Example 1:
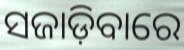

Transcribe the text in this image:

ସଜାଡ଼ିବାରେ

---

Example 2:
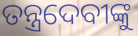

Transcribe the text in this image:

ତନ୍ତ୍ରଦେବୀଙ୍କୁ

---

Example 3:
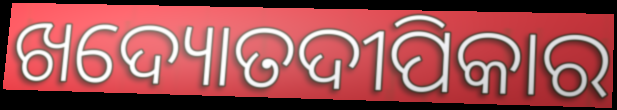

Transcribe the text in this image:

ଖଦ୍ୟୋତଦୀପିକାର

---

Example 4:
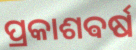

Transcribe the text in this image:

ପ୍ରକାଶଵର୍ଷ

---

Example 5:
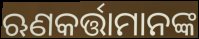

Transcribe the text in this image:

ଋଣକର୍ତ୍ତାମାନଙ୍କ